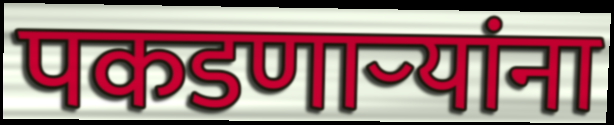
पकडणाऱ्यांना